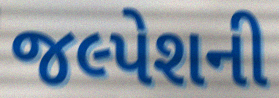
જલ્પેશની